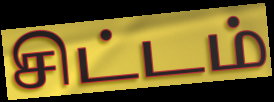
சிட்டம்